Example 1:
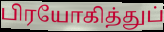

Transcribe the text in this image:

பிரயோகித்துப்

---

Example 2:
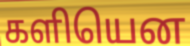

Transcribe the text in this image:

களியென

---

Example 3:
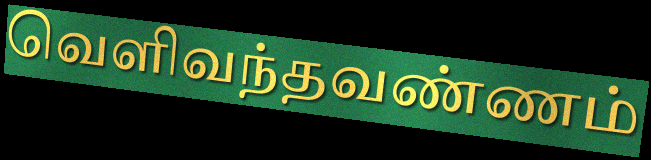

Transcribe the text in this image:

வெளிவந்தவண்ணம்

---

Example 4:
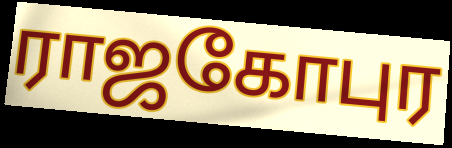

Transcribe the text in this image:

ராஜகோபுர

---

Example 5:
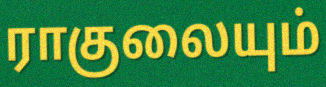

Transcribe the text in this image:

ராகுலையும்